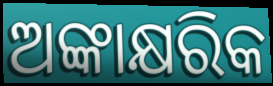
ଅଙ୍କାକ୍ଷରିକ